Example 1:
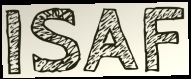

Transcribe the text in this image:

ISAF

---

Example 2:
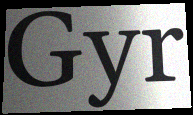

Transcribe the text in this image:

Gyr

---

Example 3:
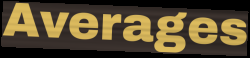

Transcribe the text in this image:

Averages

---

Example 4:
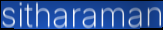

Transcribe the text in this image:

sitharaman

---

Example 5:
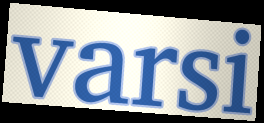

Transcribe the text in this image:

varsi